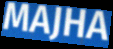
MAJHA